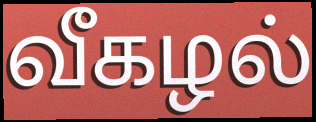
வீகழல்